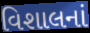
વિશાલનાં